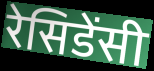
रेसिडेंसी